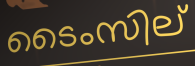
ടൈംസില്